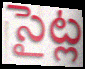
సైట్ల